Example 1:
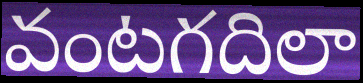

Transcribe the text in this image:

వంటగదిలా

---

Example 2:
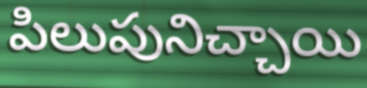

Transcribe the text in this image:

పిలుపునిచ్చాయి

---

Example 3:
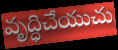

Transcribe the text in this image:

వృద్ధిచేయుచు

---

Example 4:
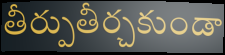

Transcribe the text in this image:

తీర్పుతీర్చకుండా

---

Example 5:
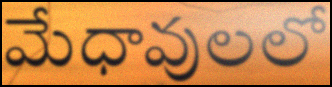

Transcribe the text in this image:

మేధావులలో